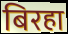
बिरहा